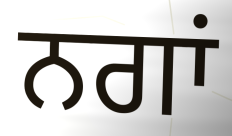
ਨਗਾਂ